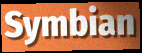
Symbian